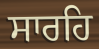
ਸਾਰਹਿ